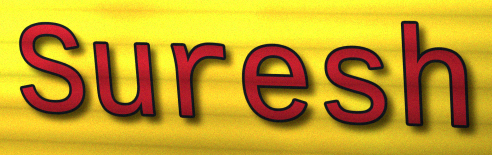
Suresh